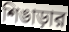
শিঙাড়ার